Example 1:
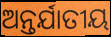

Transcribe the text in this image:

ଅନ୍ତର୍ଯାତୀୟ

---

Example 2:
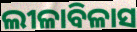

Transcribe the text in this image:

ଲୀଳାବିଳାସ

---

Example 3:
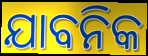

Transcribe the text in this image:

ଯାବନିକ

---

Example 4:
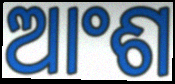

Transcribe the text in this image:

ଆଂଶ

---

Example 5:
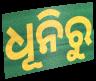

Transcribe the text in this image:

ଧୂନିରୁ